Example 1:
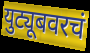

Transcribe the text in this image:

युट्यूबवरचं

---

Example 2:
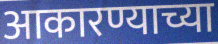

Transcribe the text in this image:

आकारण्याच्या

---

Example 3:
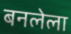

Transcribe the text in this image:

बनलेला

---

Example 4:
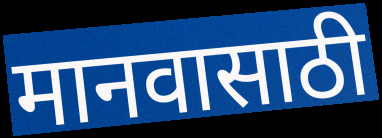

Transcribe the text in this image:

मानवासाठी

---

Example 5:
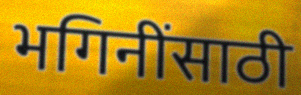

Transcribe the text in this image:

भगिनींसाठी